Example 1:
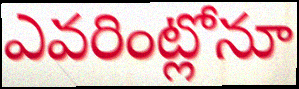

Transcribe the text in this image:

ఎవరింట్లోనూ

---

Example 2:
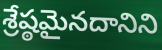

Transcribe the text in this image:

శ్రేష్ఠమైనదానిని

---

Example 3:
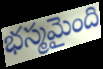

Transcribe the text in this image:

భస్మమైంది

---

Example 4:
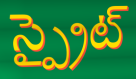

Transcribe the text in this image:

స్ప్రైట్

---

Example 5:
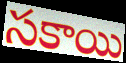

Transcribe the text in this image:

సకాయి